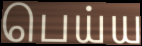
பெய்ய